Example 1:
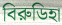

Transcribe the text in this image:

বিরুডিহা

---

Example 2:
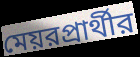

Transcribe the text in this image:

মেয়রপ্রার্থীর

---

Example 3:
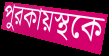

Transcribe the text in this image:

পুরকায়স্থকে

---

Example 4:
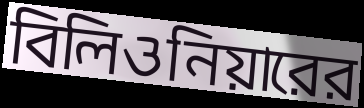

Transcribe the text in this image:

বিলিওনিয়ারের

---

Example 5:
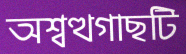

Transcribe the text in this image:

অশ্বত্থগাছটি